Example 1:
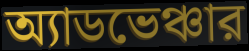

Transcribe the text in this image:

অ্যাডভেঞ্চার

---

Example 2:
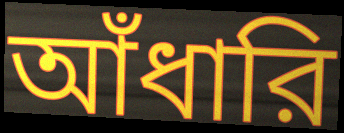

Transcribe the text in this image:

আঁধারি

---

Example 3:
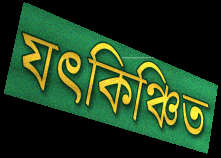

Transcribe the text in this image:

যৎকিঞ্চিত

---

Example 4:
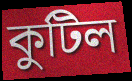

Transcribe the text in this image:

কুটিল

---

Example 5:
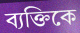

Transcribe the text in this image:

ব্যক্তিকে